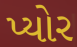
પ્યોર